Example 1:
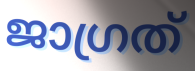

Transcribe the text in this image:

ജാഗ്രത്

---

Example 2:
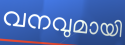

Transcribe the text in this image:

വനവുമായി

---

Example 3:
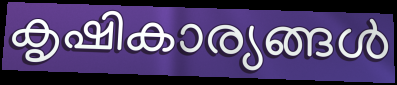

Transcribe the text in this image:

കൃഷികാര്യങ്ങൾ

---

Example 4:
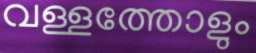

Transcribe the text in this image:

വള്ളത്തോളും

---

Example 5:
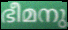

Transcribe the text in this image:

ഭീമനു